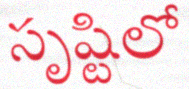
సృష్టిలో